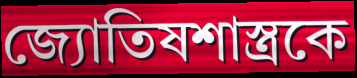
জ্যোতিষশাস্ত্রকে